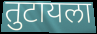
तुटायला